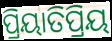
ପ୍ରିୟାତିପ୍ରିୟ